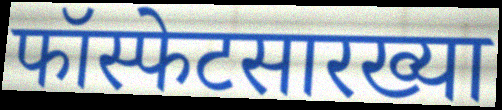
फॉस्फेटसारख्या